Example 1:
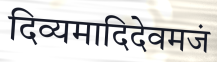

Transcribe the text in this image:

दिव्यमादिदेवमजं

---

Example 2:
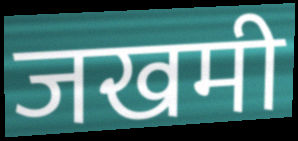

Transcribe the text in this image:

जखमी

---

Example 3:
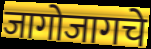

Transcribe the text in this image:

जागोजागचे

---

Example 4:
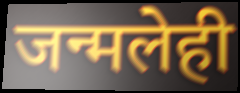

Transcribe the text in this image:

जन्मलेही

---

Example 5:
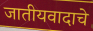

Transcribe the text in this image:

जातीयवादाचे